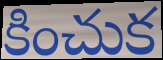
కించుక